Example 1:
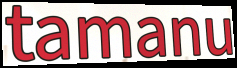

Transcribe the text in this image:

tamanu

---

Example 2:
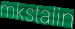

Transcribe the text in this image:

mkstalin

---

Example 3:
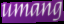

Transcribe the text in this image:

umang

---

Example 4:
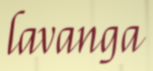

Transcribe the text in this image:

lavanga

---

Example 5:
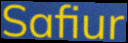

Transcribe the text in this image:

Safiur